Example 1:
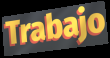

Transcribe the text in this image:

Trabajo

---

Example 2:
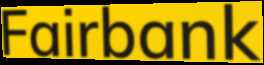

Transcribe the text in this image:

Fairbank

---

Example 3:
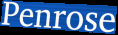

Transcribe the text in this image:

Penrose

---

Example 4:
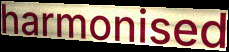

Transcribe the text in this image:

harmonised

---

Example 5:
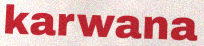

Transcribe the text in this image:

karwana